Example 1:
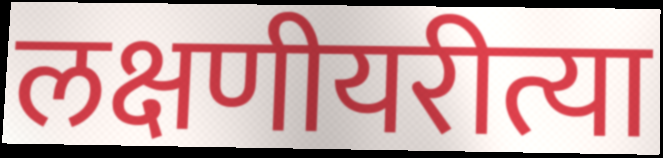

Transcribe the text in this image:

लक्षणीयरीत्या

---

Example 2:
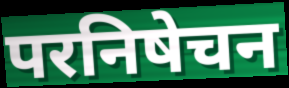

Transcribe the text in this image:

परनिषेचन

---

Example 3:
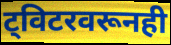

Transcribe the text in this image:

ट्विटरवरूनही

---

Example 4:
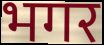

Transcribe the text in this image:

भगर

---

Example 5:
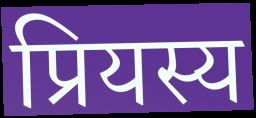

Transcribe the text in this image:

प्रियस्य